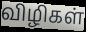
விழிகள்